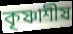
কৃষ্ণাশীষ